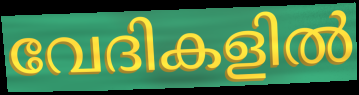
വേദികളിൽ